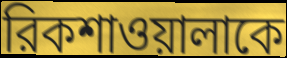
রিকশাওয়ালাকে